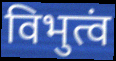
विभुत्वं